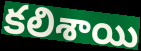
కలిశాయి